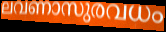
ലവണാസുരവധം